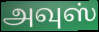
அவுஸ்